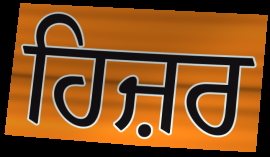
ਹਿਜ਼ਰ